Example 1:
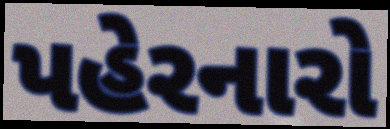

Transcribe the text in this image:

પહેરનારો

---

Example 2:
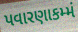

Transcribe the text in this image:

પવારણાકમ્મં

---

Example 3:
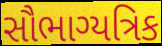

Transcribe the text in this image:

સૌભાગ્યત્રિક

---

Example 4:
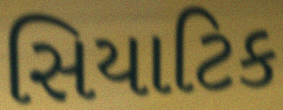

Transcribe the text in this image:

સિયાટિક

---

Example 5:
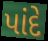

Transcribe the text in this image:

પાંદે